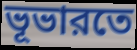
ভূভারতে